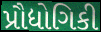
પ્રૌદ્યોગિકી